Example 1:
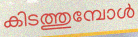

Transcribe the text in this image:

കിടത്തുമ്പോൾ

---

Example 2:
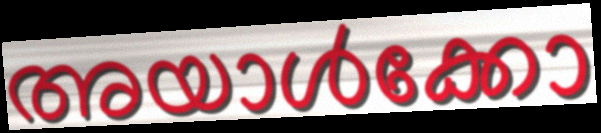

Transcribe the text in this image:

അയാൾക്കോ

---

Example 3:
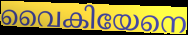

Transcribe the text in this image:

വൈകിയേനെ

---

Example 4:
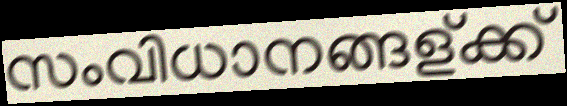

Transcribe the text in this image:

സംവിധാനങ്ങള്ക്ക്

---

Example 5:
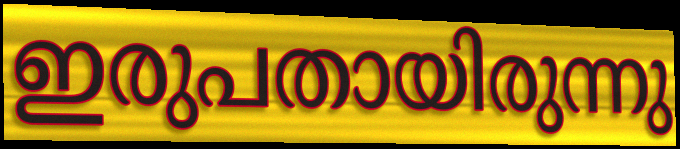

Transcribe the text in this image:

ഇരുപതായിരുന്നു